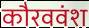
कौरववंश